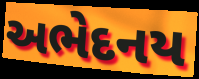
અભેદનય